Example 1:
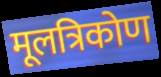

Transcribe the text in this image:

मूलत्रिकोण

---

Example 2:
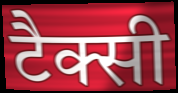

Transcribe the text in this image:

टैक्‍सी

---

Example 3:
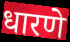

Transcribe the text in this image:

धारणे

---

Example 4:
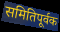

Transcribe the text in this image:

समितिपूर्वक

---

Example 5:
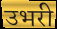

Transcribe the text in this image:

उभरी